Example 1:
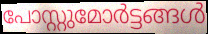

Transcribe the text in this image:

പോസ്റ്റുമോർട്ടങ്ങൾ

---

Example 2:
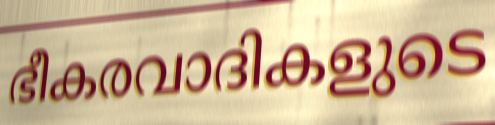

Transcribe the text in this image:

ഭീകരവാദികളുടെ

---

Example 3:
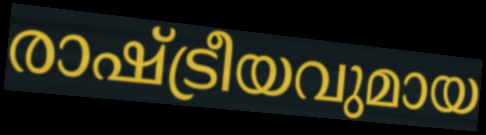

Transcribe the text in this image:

രാഷ്ട്രീയവുമായ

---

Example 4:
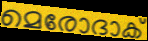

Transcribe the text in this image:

മെരോദാക്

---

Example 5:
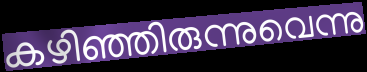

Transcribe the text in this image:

കഴിഞ്ഞിരുന്നുവെന്നു